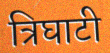
त्रिघाटी